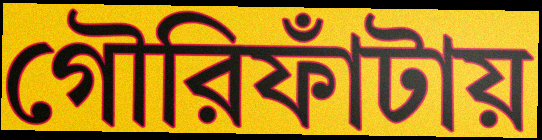
গৌরিফাঁটায়